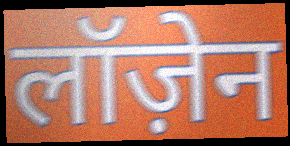
लॉज़ेन